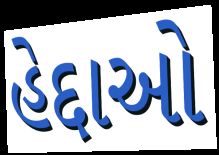
હેદ્દાઓ